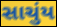
સાચુંય